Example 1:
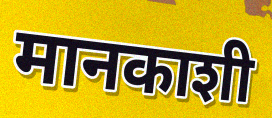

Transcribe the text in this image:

मानकाशी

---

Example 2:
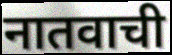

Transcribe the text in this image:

नातवाची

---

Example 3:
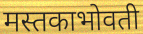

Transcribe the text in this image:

मस्तकाभोवती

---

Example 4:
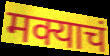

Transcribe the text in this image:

मक्याचं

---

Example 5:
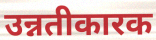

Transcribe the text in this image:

उन्नतीकारक